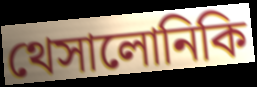
থেসালোনিকি